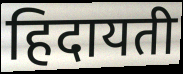
हिदायती